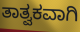
ತಾತ್ವಕವಾಗಿ